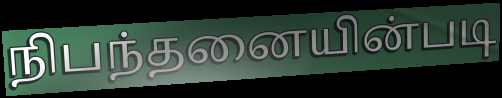
நிபந்தனையின்படி